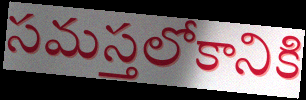
సమస్తలోకానికి